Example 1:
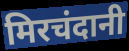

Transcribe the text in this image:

मिरचंदानी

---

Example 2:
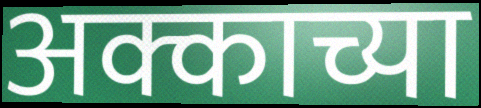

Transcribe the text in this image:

अक्काच्या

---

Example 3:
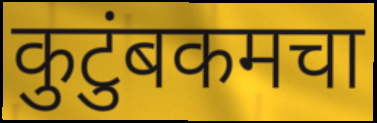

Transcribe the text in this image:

कुटुंबकमचा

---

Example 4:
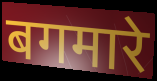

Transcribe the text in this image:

बगमारे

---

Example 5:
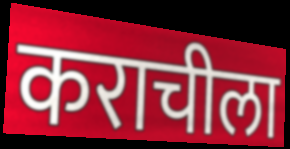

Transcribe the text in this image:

कराचीला